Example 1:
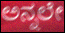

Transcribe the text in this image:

ಅನ್ನಲೇ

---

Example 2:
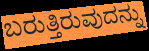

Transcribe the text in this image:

ಬರುತ್ತಿರುವುದನ್ನು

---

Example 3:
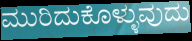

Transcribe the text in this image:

ಮುರಿದುಕೊಳ್ಳುವುದು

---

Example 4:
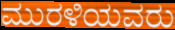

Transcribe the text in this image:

ಮುರಳಿಯವರು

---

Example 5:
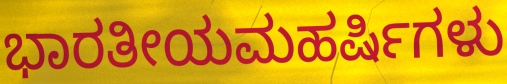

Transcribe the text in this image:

ಭಾರತೀಯಮಹರ್ಷಿಗಳು